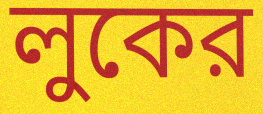
লুকের